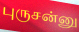
புருசன்னு